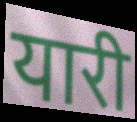
यारी